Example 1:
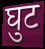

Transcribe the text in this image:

घुट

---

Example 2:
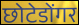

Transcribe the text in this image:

छोटेडोंगर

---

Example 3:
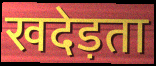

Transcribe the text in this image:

खदेड़ता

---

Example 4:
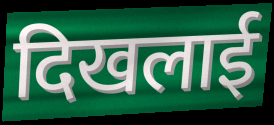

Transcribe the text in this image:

दिखलाई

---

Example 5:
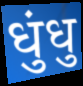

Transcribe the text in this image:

धुंधु